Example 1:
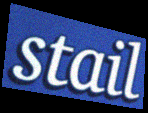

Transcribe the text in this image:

stail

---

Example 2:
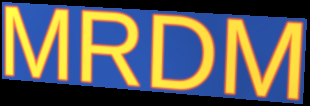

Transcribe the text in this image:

MRDM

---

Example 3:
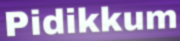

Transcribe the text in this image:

Pidikkum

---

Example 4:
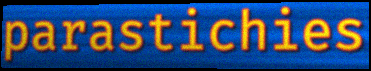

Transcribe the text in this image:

parastichies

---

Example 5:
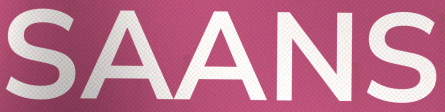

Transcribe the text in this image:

SAANS